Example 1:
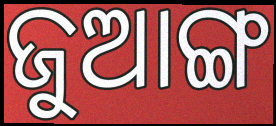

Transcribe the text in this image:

ଜୁଆଙ୍ଗ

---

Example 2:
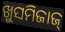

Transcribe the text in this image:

ଖୁସମିଜାଜ୍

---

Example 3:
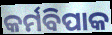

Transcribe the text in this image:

କର୍ମବିପାକ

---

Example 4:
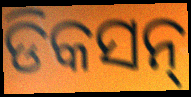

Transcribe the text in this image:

ଡିକସନ୍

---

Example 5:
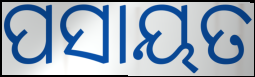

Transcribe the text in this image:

ପସାୟତ